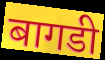
बागडी